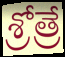
శ్రోత్రే